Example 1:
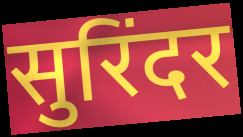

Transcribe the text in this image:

सुरिंदर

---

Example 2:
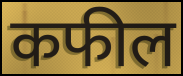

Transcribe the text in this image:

कफील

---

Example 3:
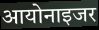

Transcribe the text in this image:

आयोनाइजर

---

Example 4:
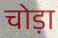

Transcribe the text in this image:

चोड़ा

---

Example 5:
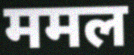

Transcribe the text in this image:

ममल